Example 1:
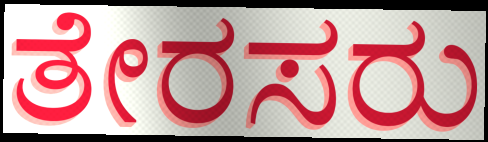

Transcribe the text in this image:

ತೇರಸರು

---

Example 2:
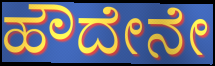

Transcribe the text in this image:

ಹೌದೇನೇ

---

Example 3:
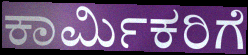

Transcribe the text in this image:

ಕಾರ್ಮಿಕರಿಗೆ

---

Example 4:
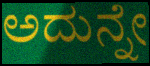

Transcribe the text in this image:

ಅದುನ್ನೇ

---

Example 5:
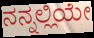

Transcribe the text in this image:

ನನ್ನಲ್ಲಿಯೇ